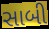
સાબી